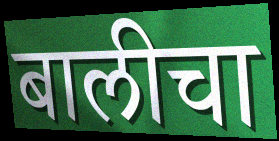
बालीचा